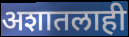
अशातलाही